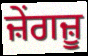
ਜ਼ੇਂਗਜ਼ੂ